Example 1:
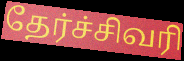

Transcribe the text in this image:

தேர்ச்சிவரி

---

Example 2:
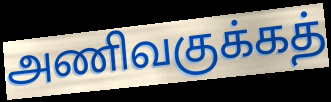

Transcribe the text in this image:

அணிவகுக்கத்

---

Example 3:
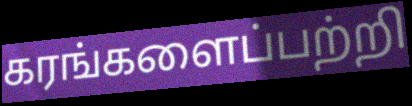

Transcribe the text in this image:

கரங்களைப்பற்றி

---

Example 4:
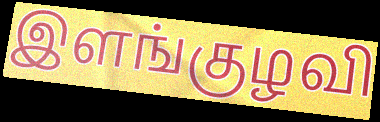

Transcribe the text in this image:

இளங்குழவி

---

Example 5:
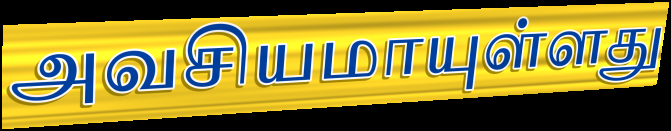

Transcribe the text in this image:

அவசியமாயுள்ளது